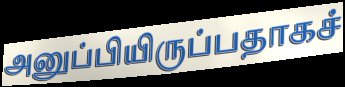
அனுப்பியிருப்பதாகச்